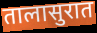
तालासुरात